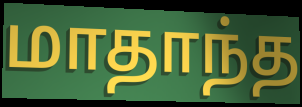
மாதாந்த